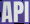
API